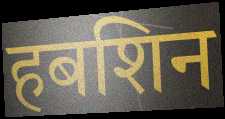
हबशिन